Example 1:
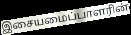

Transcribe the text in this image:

இசையமைப்பாளரின்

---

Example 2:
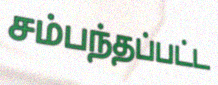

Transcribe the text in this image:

சம்பந்தப்பட்ட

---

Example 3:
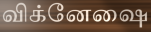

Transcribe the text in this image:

விக்னேஷை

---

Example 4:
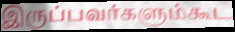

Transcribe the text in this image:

இருப்பவர்களும்கூட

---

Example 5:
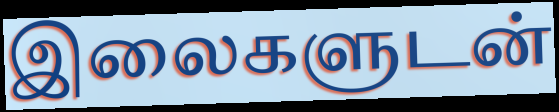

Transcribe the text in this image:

இலைகளுடன்